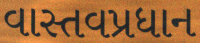
વાસ્તવપ્રધાન